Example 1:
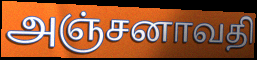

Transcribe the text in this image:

அஞ்சனாவதி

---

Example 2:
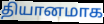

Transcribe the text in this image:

தியானமாக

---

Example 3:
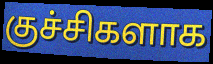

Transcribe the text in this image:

குச்சிகளாக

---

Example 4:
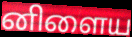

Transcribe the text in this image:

னிளைய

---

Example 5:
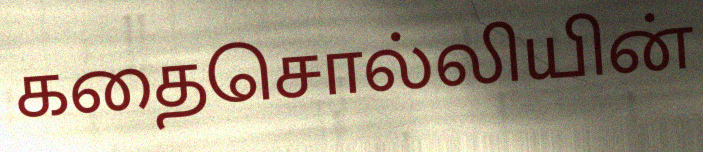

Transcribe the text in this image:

கதைசொல்லியின்